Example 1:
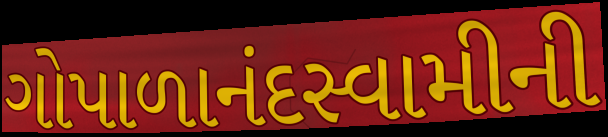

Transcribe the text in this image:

ગોપાળાનંદસ્વામીની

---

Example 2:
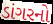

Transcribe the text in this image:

ડાંગરનો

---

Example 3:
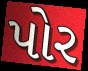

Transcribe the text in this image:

પોર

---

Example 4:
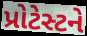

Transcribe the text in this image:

પ્રોટેસ્ટને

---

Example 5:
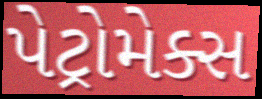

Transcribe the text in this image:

પેટ્રોમેક્સ